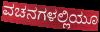
ವಚನಗಳಲ್ಲಿಯೂ